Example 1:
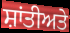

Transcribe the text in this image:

ਸ਼ਾਂਤੀਅਤੇ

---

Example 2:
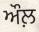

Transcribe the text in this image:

ਔਲ਼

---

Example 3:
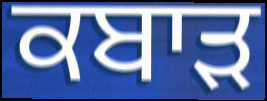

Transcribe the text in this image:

ਕਬਾਡ਼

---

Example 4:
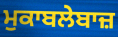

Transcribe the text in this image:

ਮੁਕਾਬਲੇਬਾਜ਼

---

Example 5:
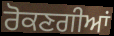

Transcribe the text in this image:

ਰੋਕਣਗੀਆਂ